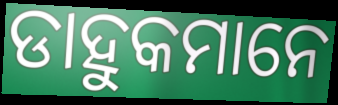
ଡାହୁକମାନେ